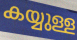
കയ്യുള്ള